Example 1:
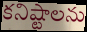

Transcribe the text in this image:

కనిష్టాలను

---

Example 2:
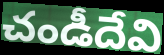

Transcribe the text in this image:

చండీదేవి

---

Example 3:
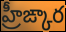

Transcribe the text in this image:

హ్రీఙ్కార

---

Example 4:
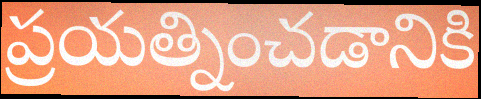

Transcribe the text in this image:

ప్రయత్నించడానికి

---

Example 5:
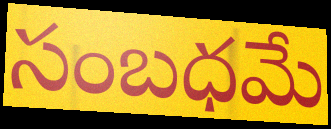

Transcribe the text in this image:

సంబధమే